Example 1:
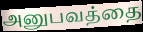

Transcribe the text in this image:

அனுபவத்தை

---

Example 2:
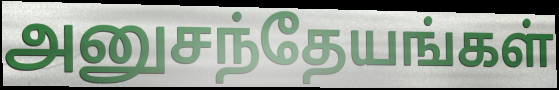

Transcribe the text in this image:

அனுசந்தேயங்கள்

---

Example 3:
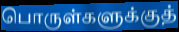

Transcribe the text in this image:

பொருள்களுக்குத்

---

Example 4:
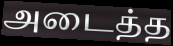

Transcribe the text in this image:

அடைத்த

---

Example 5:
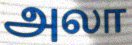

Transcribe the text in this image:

அலா